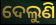
ଦେଲୁଣି